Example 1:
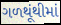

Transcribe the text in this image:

ગળથૂંથીમાં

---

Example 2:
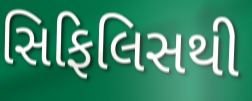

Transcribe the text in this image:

સિફિલિસથી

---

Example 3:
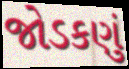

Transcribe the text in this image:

જોડકણું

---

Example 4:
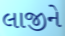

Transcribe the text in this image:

લાજીને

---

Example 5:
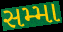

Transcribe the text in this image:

સમ્મા